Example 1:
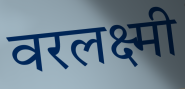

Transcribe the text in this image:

वरलक्ष्‍मी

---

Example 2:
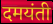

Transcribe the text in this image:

दमयंती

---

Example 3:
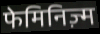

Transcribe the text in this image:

फेमिनिज़्म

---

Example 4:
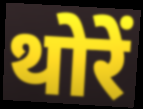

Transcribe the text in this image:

थोरें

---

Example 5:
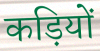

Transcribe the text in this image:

कड़ियों